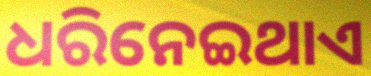
ଧରିନେଇଥାଏ